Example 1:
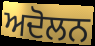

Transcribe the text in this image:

ਅਦੋਲਨ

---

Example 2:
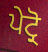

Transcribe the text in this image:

ਪੇਟ੍ਰੋ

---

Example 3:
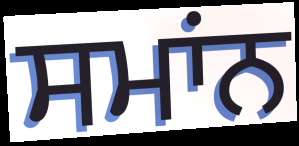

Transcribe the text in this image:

ਸਮਾਂਨ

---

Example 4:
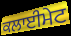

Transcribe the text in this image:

ਕਲਾਈਮੇਟ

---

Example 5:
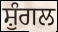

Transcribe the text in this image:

ਸ਼ੁੰਗਲ